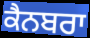
ਕੈਨਬਰਾ